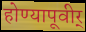
होण्यापूवीर्